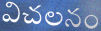
విచలనం